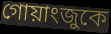
গোয়াংজুকে